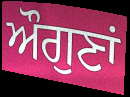
ਔਗੁਣਾਂ